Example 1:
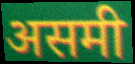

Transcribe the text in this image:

असमी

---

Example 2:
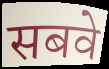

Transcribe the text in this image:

सबवे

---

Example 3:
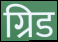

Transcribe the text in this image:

ग्रिड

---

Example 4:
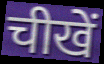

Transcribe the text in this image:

चीखें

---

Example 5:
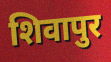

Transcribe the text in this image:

शिवापुर